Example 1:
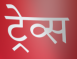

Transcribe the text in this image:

ट्रेव्स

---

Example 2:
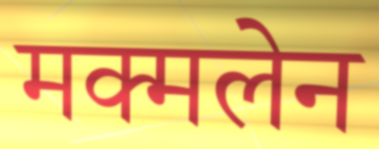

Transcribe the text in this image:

मक्मलेन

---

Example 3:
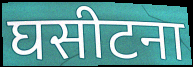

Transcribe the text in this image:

घसीटना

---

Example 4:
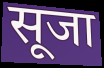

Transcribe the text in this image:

सूजा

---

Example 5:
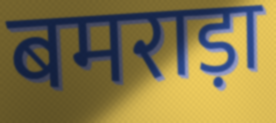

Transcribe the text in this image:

बमराड़ा